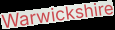
Warwickshire